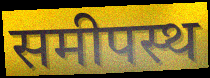
समीपस्थ